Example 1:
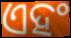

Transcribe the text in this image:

ଏହଂ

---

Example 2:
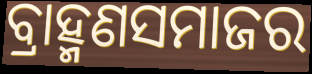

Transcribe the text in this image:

ବ୍ରାହ୍ମଣସମାଜର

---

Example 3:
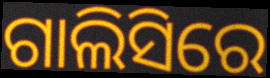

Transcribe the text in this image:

ଗାଲିସିରେ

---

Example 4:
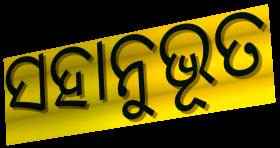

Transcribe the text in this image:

ସହାନୁଭୂତ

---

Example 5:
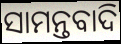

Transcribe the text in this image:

ସାମନ୍ତବାଦି